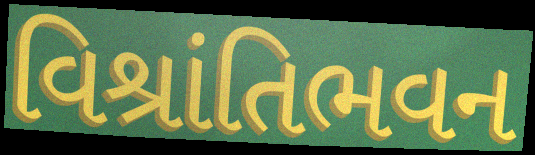
વિશ્રાંતિભવન